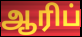
ஆரிப்